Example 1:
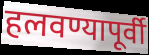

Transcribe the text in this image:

हलवण्यापूर्वी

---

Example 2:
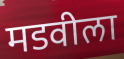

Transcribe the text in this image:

मडवीला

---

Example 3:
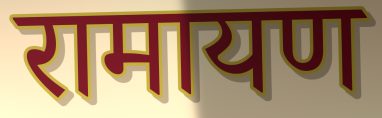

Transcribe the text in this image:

रामायण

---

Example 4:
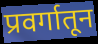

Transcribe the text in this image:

प्रवर्गातून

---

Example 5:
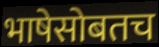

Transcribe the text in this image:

भाषेसोबतच